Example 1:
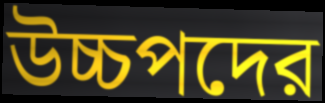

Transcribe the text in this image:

উচ্চপদের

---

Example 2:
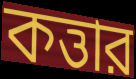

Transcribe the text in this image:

কত্তার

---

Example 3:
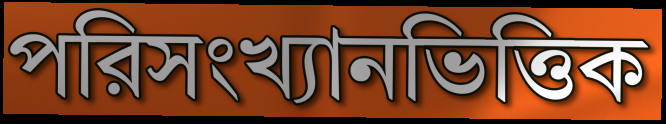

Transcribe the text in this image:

পরিসংখ্যানভিত্তিক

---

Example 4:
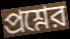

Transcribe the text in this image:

প্রশ্নের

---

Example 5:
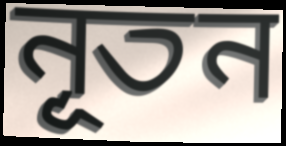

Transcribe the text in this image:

নূতন